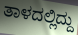
ತಾಳದಲ್ಲಿದ್ದು